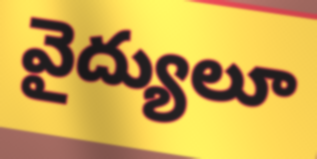
వైద్యులూ